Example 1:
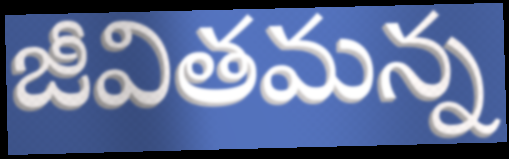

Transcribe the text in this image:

జీవితమన్న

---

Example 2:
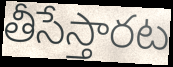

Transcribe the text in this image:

తీసేస్తారట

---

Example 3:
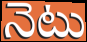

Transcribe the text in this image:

నెటు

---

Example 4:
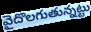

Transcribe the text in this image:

వైదొలగుతున్నట్టు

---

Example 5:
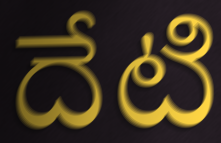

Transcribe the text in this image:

దేటి